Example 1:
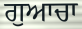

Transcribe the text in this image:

ਗੁਆਚਾ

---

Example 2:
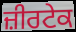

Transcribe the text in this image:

ਜ਼ੀਰਟੇਕ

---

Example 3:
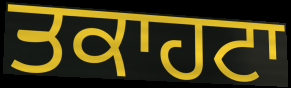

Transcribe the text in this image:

ਤਕਾਹਟਾ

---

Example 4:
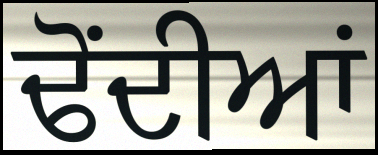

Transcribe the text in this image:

ਢੋਂਦੀਆਂ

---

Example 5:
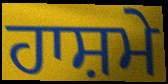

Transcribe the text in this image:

ਹਾਸ਼ਮੇ